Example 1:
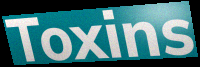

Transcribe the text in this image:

Toxins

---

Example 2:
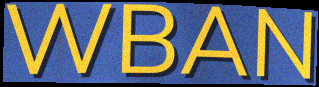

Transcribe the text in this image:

WBAN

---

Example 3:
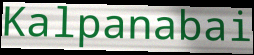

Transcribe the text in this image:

Kalpanabai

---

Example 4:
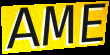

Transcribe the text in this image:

AME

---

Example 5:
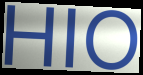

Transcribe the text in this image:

HIO